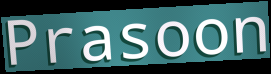
Prasoon